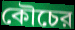
কৌচের